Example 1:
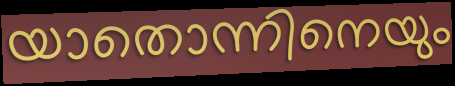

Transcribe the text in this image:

യാതൊന്നിനെയും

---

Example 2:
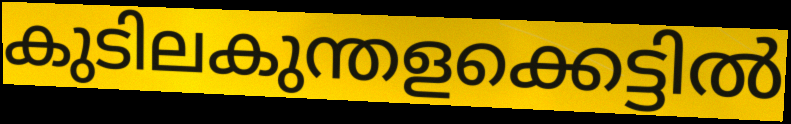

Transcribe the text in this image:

കുടിലകുന്തളക്കെട്ടിൽ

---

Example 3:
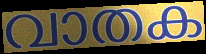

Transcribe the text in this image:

വാതക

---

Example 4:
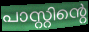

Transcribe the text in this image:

പാസ്റ്റിന്റെ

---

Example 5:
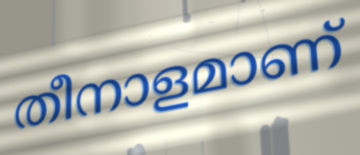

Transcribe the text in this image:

തീനാളമാണ്